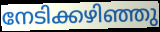
നേടിക്കഴിഞ്ഞു